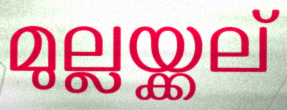
മുല്ലയ്ക്കല്